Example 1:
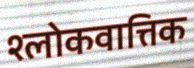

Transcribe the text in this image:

श्लोकवात्तिक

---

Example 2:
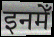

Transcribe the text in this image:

इनमेँ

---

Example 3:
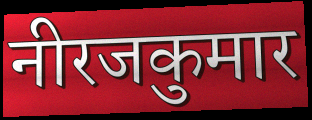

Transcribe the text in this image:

नीरजकुमार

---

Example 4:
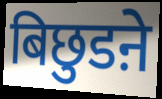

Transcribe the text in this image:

बिछुडऩे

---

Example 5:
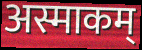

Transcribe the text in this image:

अस्माकम्